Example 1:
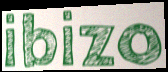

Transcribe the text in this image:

ibizo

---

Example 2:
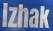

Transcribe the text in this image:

Izhak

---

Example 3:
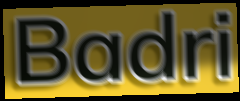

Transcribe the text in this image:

Badri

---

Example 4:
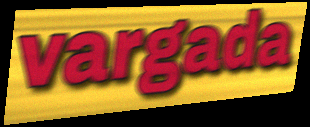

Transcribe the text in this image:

vargada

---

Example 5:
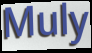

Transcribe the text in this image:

Muly